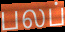
பலப்